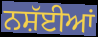
ਨਸ਼ੱਈਆਂ